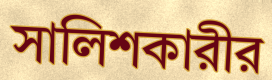
সালিশকারীর